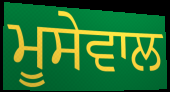
ਮੂਸੇਵਾਲ